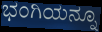
ಭಂಗಿಯನ್ನೂ